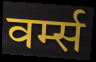
वर्म्स